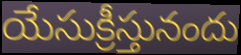
యేసుక్రీస్తునందు